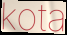
kota